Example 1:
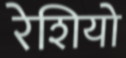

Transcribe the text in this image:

रेशियो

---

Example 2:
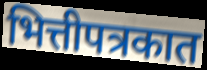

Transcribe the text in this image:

भित्तीपत्रकात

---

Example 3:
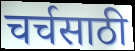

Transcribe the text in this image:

चर्चसाठी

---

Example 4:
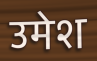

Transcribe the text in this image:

उमेश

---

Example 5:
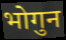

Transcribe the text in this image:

भोगुन